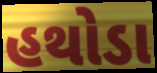
હથોડા